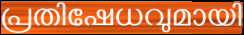
പ്രതിഷേധവുമായി